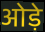
ओड़े